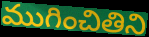
ముగించితిని